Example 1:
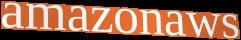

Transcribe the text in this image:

amazonaws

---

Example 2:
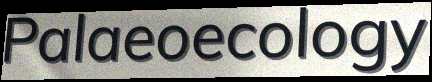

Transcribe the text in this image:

Palaeoecology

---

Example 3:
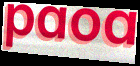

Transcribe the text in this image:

paoa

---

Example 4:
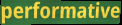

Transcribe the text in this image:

performative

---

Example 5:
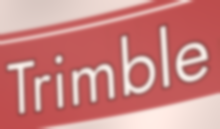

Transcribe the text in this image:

Trimble